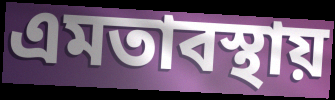
এমতাবস্থায়